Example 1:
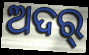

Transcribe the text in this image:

ଅଦର୍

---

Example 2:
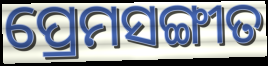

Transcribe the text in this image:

ପ୍ରେମସଙ୍ଗୀତ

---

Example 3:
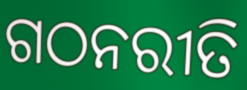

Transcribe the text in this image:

ଗଠନରୀତି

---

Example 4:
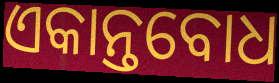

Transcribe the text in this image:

ଏକାନ୍ତବୋଧ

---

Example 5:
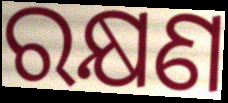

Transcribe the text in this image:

ରକ୍ଷଣ